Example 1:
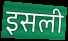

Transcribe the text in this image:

इसली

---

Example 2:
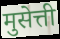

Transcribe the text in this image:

मुसेत्ती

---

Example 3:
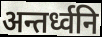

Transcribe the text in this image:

अन्तर्ध्वनि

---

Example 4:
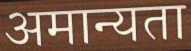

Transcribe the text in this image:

अमान्यता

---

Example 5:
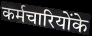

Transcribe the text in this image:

कर्मचारियोंके